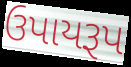
ઉપાયરૂપ